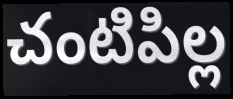
చంటిపిల్ల